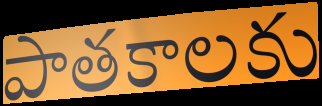
పాతకాలకు